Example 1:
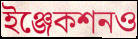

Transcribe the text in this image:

ইঞ্জেকশনও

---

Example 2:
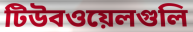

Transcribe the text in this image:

টিউবওয়েলগুলি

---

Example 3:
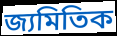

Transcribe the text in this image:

জ্যমিতিক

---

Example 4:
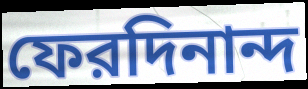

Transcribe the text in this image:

ফেরদিনান্দ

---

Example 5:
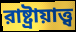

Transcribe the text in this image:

রাষ্ট্রায়াত্ত্ব